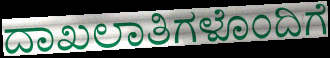
ದಾಖಲಾತಿಗಳೊಂದಿಗೆ